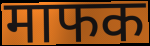
माफक